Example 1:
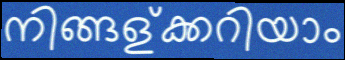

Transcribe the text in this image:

നിങ്ങള്ക്കറിയാം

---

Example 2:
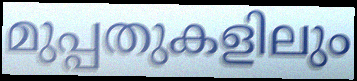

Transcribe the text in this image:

മുപ്പതുകളിലും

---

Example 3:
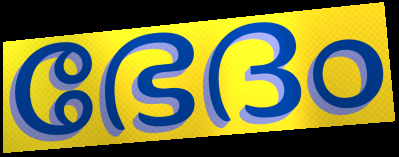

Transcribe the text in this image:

ഭേദം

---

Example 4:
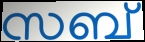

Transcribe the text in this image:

സബ്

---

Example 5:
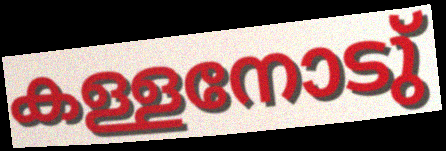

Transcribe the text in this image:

കള്ളനോടു്